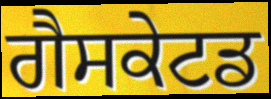
ਗੈਸਕੇਟਡ